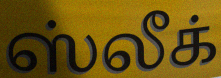
ஸ்லீக்